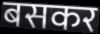
बसकर